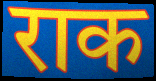
राक